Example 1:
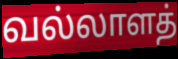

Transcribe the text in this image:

வல்லாளத்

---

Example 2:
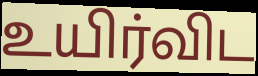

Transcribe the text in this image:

உயிர்விட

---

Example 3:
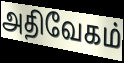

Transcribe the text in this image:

அதிவேகம்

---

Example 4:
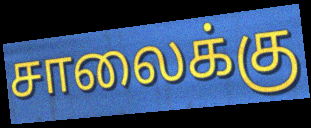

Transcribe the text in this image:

சாலைக்கு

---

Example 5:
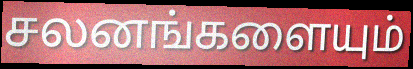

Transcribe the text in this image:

சலனங்களையும்